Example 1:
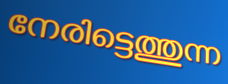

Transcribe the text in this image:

നേരിട്ടെത്തുന്ന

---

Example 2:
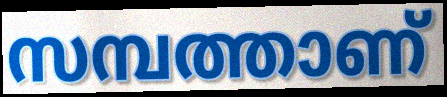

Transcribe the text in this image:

സമ്പത്താണ്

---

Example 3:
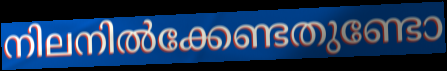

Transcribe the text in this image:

നിലനിൽക്കേണ്ടതുണ്ടോ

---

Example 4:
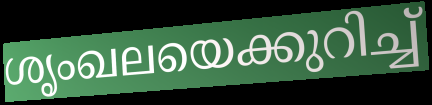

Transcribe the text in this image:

ശൃംഖലയെക്കുറിച്ച്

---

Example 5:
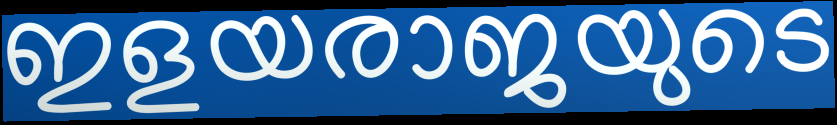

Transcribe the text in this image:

ഇളയരാജയുടെ